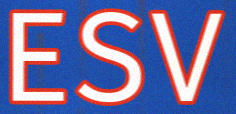
ESV